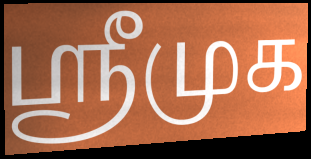
ஸ்ரீமுக